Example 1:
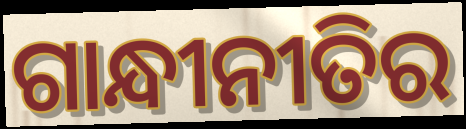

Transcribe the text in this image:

ଗାନ୍ଧୀନୀତିର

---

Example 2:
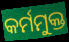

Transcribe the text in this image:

କର୍ମମୁକ୍ତ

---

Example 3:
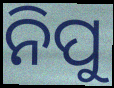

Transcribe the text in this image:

ନିପୁ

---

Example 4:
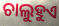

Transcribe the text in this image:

ଚାଲୁହୁଏ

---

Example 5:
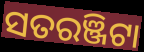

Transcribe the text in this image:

ସତରଞ୍ଜିଟା